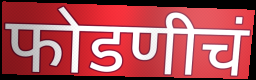
फोडणीचं